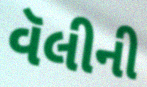
વૅલીની